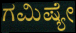
ಗಮಿಷ್ಯೇ